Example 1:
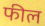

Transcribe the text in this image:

फील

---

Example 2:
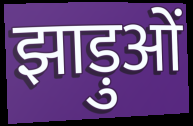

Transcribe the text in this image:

झाड़ुओं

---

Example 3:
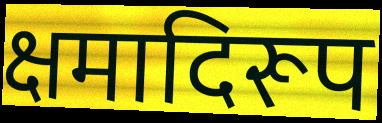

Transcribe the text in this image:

क्षमादिरूप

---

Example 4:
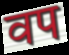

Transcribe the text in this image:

वप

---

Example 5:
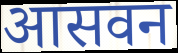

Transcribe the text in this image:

आसवन